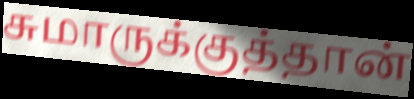
சுமாருக்குத்தான்